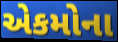
એકમોના